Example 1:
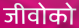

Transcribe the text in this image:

जीवोको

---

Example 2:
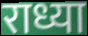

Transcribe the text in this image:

राध्या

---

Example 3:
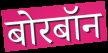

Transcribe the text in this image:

बोरबॉन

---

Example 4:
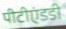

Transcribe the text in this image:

पीटीएंडडी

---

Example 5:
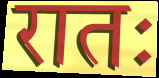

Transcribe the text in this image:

रातः